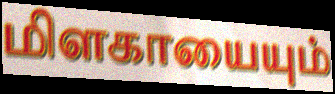
மிளகாயையும்